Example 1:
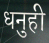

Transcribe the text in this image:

धनुही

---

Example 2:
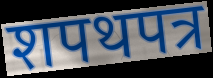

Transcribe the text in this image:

शपथपत्र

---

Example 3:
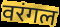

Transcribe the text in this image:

वरंगल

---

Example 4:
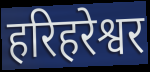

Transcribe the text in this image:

हरिहरेश्वर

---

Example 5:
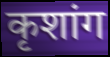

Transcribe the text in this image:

कृशांग